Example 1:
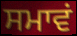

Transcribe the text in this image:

ਸਮਾਵਂ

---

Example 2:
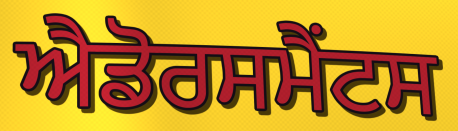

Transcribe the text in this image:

ਐਡੋਰਸਮੈਂਟਸ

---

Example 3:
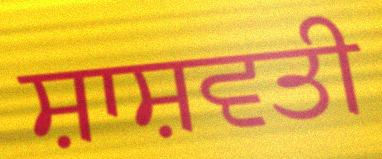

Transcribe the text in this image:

ਸ਼ਾਸ਼ਵਤੀ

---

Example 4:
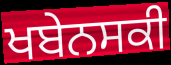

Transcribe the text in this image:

ਖਬੇਨਸਕੀ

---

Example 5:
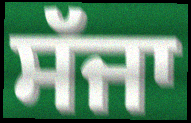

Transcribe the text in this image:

ਸੱਜਾ